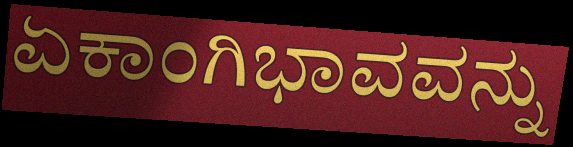
ಏಕಾಂಗಿಭಾವವನ್ನು